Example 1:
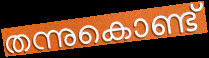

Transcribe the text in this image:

തന്നുകൊണ്ട്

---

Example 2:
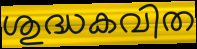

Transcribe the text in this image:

ശുദ്ധകവിത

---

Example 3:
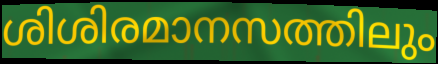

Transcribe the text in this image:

ശിശിരമാനസത്തിലും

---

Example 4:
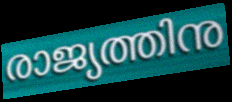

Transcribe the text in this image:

രാജ്യത്തിനു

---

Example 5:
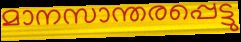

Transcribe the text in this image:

മാനസാന്തരപ്പെട്ടു